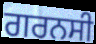
ਗਰਨਸੀ